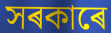
সৰকাৰে